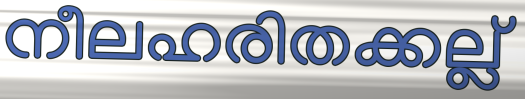
നീലഹരിതക്കല്ല്